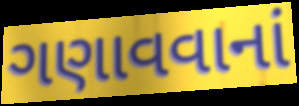
ગણાવવાનાં